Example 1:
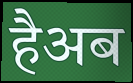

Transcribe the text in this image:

हैअब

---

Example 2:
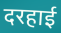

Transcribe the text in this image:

दरहाई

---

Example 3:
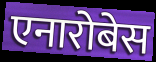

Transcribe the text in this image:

एनारोबेस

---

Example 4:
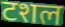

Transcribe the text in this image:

टशल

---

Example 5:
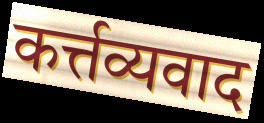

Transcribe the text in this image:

कर्त्तव्यवाद